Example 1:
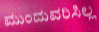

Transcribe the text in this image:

ಮುಂದುವರಿಸಿಲ್ಲ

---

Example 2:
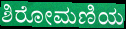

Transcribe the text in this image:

ಶಿರೋಮಣಿಯ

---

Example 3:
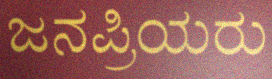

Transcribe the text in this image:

ಜನಪ್ರಿಯರು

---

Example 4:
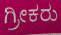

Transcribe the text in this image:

ಗ್ರೀಕರು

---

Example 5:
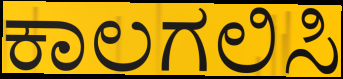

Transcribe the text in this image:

ಕಾಲಗಲಿಸಿ